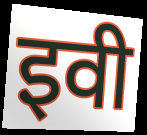
इवी